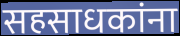
सहसाधकांना